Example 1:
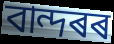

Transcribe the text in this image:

বান্দৰৰ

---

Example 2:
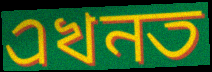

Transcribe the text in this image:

এখনত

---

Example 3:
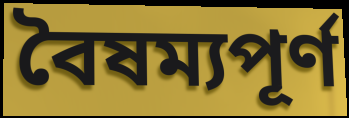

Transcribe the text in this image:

বৈষম্যপূৰ্ণ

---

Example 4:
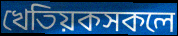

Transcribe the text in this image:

খেতিয়কসকলে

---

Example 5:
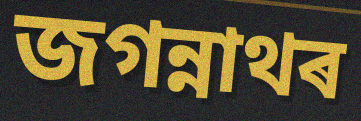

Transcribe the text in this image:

জগন্নাথৰ